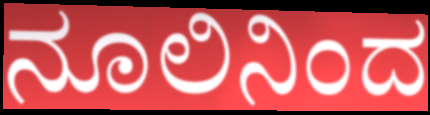
ನೂಲಿನಿಂದ